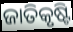
ଜାତିକୃଷ୍ଟି